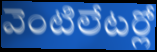
వెంటిలేటర్లో